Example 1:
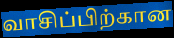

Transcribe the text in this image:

வாசிப்பிற்கான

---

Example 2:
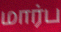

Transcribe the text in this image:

மார்ப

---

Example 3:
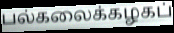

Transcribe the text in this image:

பல்கலைக்கழகப்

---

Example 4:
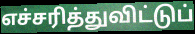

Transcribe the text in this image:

எச்சரித்துவிட்டுப்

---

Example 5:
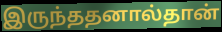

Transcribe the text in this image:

இருந்ததனால்தான்